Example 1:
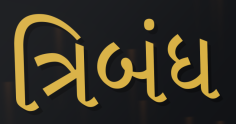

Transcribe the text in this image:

ત્રિબંધ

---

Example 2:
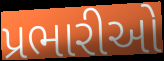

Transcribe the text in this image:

પ્રભારીઓ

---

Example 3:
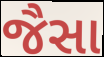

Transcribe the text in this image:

જૈસા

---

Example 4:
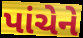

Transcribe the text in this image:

પાંચેને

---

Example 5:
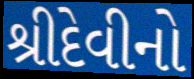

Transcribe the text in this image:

શ્રીદેવીનો